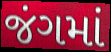
જંગમાં